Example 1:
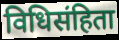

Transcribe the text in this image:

विधिसंहिता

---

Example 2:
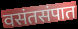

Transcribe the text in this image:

वसंतसंपात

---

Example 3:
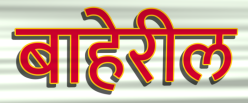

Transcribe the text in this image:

बाहेरील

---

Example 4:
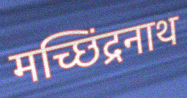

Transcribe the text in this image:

मच्छिंद्रनाथ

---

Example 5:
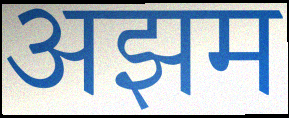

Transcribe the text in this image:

अझम